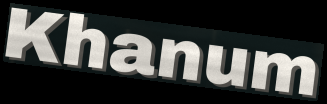
Khanum